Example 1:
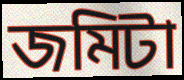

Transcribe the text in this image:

জমিটা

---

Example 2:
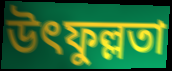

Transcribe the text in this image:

উৎফুল্লতা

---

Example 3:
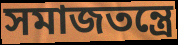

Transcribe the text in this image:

সমাজতন্ত্রে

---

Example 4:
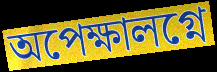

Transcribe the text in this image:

অপেক্ষালগ্নে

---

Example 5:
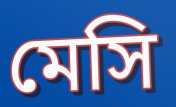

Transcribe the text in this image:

মেসি